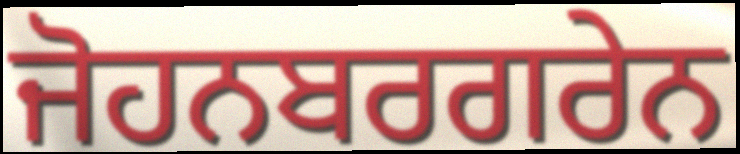
ਜੋਹਨਬਰਗਰੇਨ